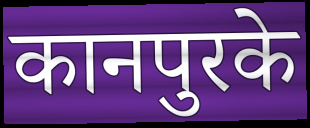
कानपुरके